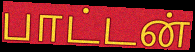
பாட்டன்